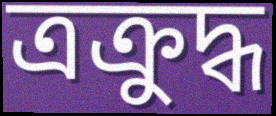
ত্রক্রুদ্ধ